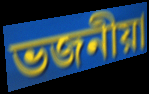
ভজনীয়া